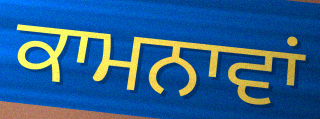
ਕਾਮਨਾਵਾਂ